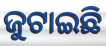
ଜୁଟାଇଛି